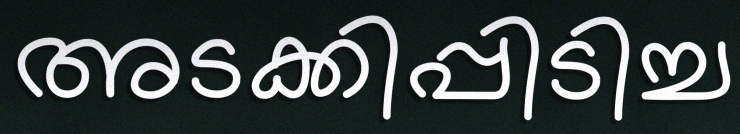
അടക്കിപ്പിടിച്ച